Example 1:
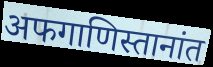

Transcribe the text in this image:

अफगाणिस्तानांत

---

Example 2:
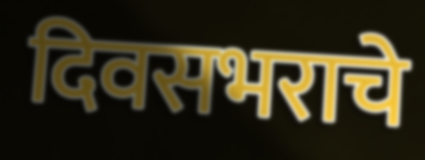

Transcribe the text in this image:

दिवसभराचे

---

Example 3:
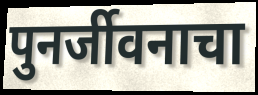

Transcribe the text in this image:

पुनर्जीवनाचा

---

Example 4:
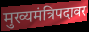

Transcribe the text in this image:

मुख्यमंत्रिपदावर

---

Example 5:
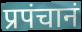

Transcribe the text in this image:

प्रपंचानं